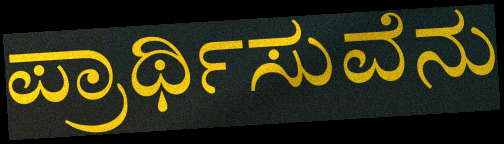
ಪ್ರಾರ್ಥಿಸುವೆನು